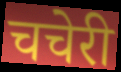
चचेरी